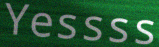
Yessss